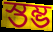
স্তম্ভ